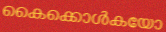
കൈക്കൊൾകയോ